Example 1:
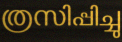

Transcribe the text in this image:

ത്രസിപ്പിച്ചു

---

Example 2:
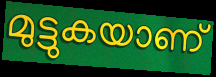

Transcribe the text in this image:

മുട്ടുകയാണ്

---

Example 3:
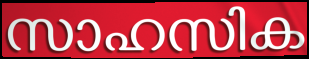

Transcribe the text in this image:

സാഹസിക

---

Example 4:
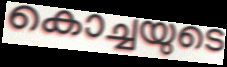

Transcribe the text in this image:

കൊച്ചയുടെ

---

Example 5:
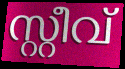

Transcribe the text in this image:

സ്റ്റീവ്